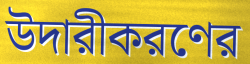
উদারীকরণের